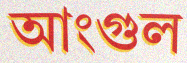
আংগুল